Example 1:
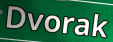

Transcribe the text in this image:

Dvorak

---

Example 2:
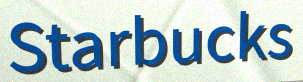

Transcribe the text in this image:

Starbucks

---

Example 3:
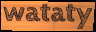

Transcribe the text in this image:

wataty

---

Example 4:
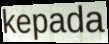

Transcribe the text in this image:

kepada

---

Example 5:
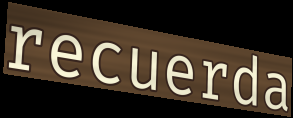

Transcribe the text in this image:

recuerda